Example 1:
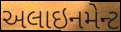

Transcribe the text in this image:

અલાઇનમેન્ટ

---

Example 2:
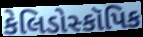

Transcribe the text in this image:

કેલિડોસ્કૉપિક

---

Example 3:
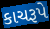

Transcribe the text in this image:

કાચરૂપે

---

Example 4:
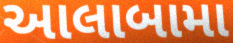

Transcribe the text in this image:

આલાબામા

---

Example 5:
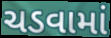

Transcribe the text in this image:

ચડવામાં